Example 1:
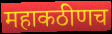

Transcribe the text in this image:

महाकठीणच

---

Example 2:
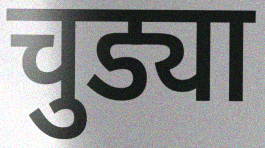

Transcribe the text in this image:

चुड्या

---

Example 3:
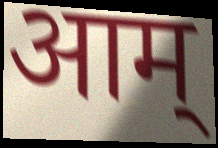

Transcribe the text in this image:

आम्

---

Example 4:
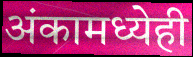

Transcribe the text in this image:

अंकामध्येही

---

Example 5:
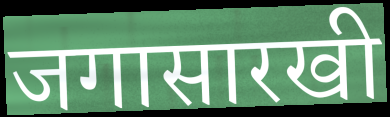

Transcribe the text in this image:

जगासारखी